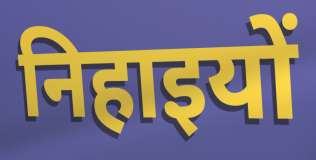
निहाइयों